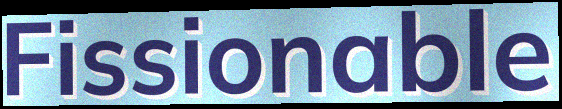
Fissionable